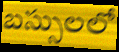
బస్సులలో